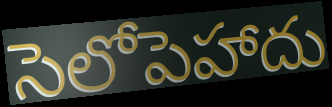
సెలోపెహాదు